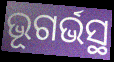
ଭୂଗର୍ଭସ୍ଥ